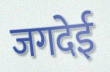
जगदेई